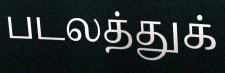
படலத்துக்